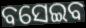
ବସେଇବ